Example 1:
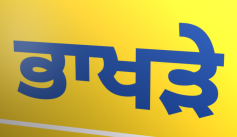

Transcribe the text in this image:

ਭਾਖੜੇ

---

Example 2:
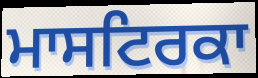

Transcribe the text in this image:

ਮਾਸਟਿਰਕਾ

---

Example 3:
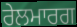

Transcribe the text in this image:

ਰੇਲਮਾਰਗ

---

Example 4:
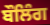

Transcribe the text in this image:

ਬੌਲਿੰਗ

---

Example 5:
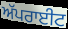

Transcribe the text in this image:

ਅੱਪਰਾਈਟ